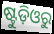
ଷ୍ଟୁଡ଼ିଓରୁ